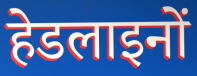
हेडलाइनों